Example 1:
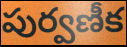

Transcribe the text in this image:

పుర్వణీక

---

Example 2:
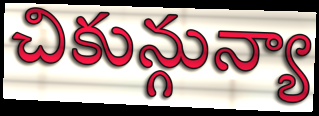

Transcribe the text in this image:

చికున్గున్యా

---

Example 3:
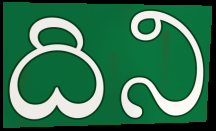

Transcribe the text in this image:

దిని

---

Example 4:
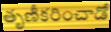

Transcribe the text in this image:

తృణీకరించాడో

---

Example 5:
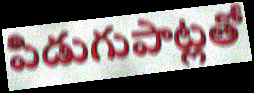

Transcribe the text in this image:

పిడుగుపాట్లతో